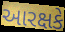
આરક્ષકે